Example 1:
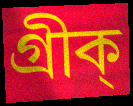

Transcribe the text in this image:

গ্রীক্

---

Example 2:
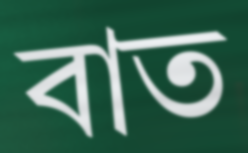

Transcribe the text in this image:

বাত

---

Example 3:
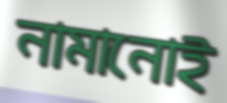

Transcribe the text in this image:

নামানোই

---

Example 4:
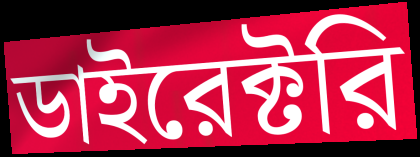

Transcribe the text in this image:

ডাইরেক্টরি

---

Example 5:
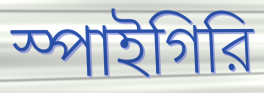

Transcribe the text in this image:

স্পাইগিরি